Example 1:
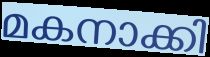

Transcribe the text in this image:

മകനാക്കി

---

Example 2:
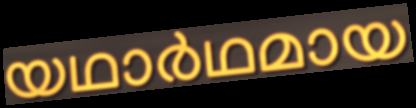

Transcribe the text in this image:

യഥാർഥമായ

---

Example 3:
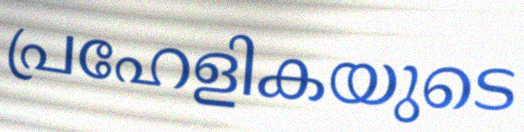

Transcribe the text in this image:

പ്രഹേളികയുടെ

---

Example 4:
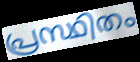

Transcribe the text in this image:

പ്രസ്ഥിതം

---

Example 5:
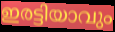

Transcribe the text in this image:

ഇരട്ടിയാവും